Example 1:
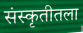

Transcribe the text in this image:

संस्कृतीतला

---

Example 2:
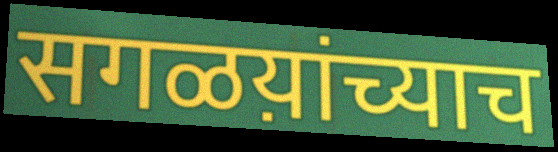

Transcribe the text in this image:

सगळय़ांच्याच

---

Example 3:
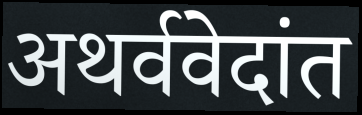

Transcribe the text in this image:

अथर्ववेदांत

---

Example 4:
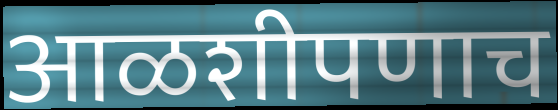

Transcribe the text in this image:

आळशीपणाच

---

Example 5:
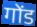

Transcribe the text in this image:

गोंड